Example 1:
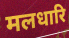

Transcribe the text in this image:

मलधारि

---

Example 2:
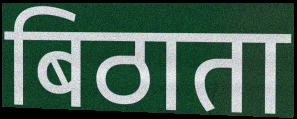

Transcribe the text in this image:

बिठाता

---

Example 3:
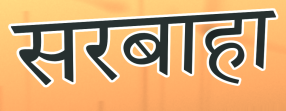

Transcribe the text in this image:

सरबाहा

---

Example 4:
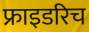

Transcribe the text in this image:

फ्राइडरिच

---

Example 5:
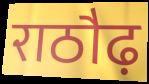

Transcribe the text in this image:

राठौढ़